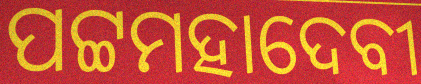
ପଟ୍ଟମହାଦେବୀ